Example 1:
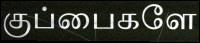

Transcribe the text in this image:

குப்பைகளே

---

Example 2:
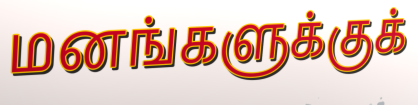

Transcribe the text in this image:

மனங்களுக்குக்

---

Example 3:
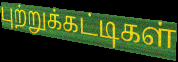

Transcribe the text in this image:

புற்றுக்கட்டிகள்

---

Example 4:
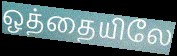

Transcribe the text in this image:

ஒத்தையிலே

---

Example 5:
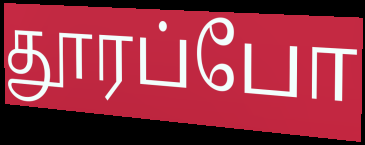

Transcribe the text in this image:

தூரப்போ